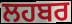
ਲਹਬਰ